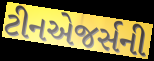
ટીનએજર્સની